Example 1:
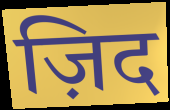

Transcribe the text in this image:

ज़िद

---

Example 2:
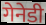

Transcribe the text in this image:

गेनेडी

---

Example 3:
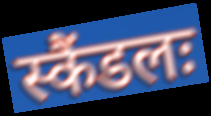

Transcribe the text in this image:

स्कैंडलः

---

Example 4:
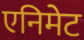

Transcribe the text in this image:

एनिमेट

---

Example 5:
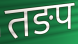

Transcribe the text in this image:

तङप